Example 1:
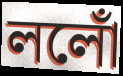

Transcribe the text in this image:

ললোঁ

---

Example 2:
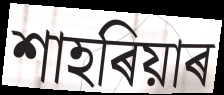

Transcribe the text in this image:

শাহৰিয়াৰ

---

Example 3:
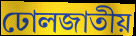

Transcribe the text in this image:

ঢোলজাতীয়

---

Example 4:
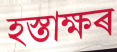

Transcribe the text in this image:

হস্তাক্ষৰ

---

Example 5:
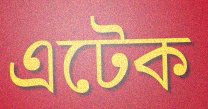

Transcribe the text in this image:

এটেক